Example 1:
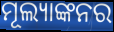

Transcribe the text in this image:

ମୂଲ୍ୟାଙ୍କନର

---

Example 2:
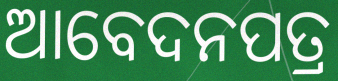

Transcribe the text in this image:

ଆବେଦନପତ୍ର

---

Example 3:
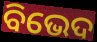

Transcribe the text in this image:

ବିଭେଦ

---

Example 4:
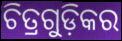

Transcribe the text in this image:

ଚିତ୍ରଗୁଡ଼ିକର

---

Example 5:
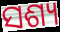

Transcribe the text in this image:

ସଶ୍ୟ